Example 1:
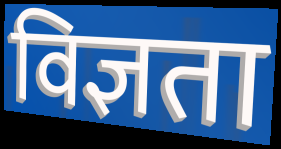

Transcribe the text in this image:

विज्ञता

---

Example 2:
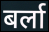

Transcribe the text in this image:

बर्ला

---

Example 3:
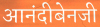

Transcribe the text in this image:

आनंदीबेनजी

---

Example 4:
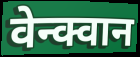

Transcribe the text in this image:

वेन्क्वान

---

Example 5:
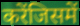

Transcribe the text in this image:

करेंजिसमें